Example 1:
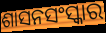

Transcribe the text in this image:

ଶାସନସଂସ୍କାର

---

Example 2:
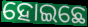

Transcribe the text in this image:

ହୋଇଛେ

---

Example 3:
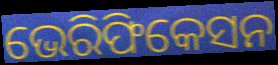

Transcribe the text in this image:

ଭେରିଫିକେସନ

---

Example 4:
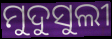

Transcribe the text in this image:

ମୁଦୁସୁଲୀ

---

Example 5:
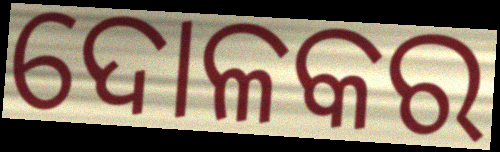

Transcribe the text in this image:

ଦୋଳକର